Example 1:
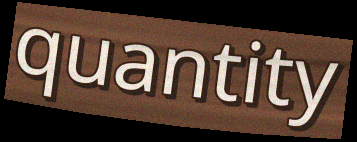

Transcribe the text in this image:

quantity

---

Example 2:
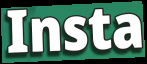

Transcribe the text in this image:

Insta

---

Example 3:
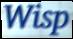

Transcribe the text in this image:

Wisp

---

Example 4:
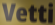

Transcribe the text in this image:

Vetti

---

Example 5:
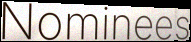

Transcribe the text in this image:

Nominees